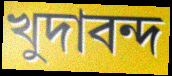
খুদাবন্দ